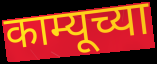
काम्यूच्या